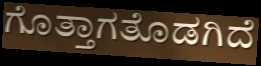
ಗೊತ್ತಾಗತೊಡಗಿದೆ